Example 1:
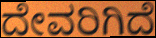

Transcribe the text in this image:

ದೇವರಿಗಿದೆ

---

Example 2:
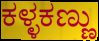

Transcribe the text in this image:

ಕಳ್ಳಕಣ್ಣು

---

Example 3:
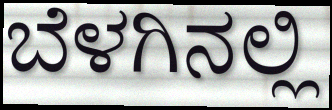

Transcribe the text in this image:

ಬೆಳಗಿನಲ್ಲಿ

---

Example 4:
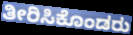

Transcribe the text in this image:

ತೀರಿಸಿಕೊಂಡರು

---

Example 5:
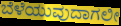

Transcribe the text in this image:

ಬೆಳೆಯುವುದಾಗಲೀ